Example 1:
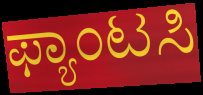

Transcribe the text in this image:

ಫ್ಯಾಂಟಸಿ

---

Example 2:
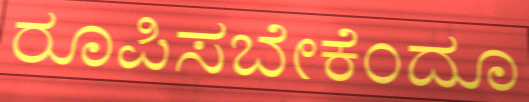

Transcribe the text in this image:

ರೂಪಿಸಬೇಕೆಂದೂ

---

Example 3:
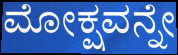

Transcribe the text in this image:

ಮೋಕ್ಷವನ್ನೇ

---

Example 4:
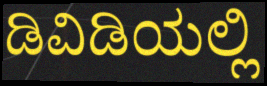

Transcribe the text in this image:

ಡಿವಿಡಿಯಲ್ಲಿ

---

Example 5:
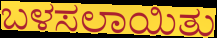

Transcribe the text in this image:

ಬಳಸಲಾಯಿತು